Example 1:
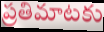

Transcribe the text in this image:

ప్రతిమాటకు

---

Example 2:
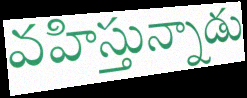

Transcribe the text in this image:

వహిస్తున్నాడు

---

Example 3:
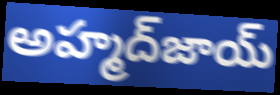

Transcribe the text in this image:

అహ్మద్‌జాయ్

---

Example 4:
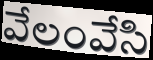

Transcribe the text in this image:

వేలంవేసి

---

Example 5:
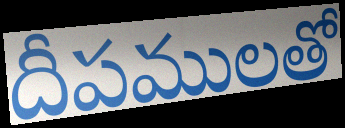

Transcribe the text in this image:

దీపములతో